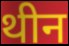
थीन